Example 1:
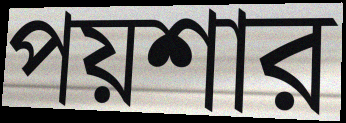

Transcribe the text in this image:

পয়শার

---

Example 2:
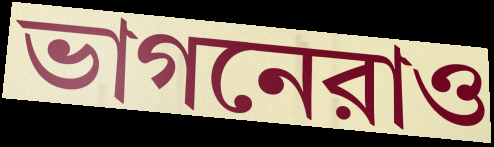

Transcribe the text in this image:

ভাগনেরাও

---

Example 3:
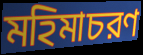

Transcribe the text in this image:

মহিমাচরণ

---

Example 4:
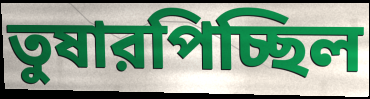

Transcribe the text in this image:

তুষারপিচ্ছিল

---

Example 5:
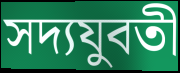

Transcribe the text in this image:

সদ্যযুবতী